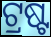
ଟ୍ରଷ୍ଟ